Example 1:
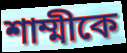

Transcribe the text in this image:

শাম্মীকে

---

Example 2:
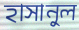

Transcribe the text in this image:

হাসানুল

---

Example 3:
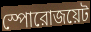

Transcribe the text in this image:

স্পোরোজয়েট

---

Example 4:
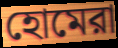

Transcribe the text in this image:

হোমেরা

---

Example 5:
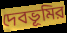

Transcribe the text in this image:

দেবভূমির